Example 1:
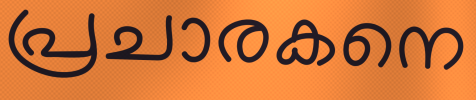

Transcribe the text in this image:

പ്രചാരകനെ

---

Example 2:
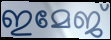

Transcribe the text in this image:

ഇമേജ്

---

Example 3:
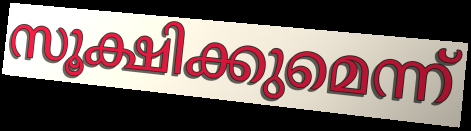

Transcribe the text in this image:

സൂക്ഷിക്കുമെന്ന്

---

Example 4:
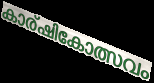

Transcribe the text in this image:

കാര്ഷികോത്സവം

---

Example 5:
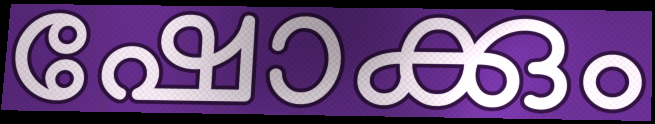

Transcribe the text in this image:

ഷോക്കും